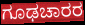
ಗೂಢಚಾರರ